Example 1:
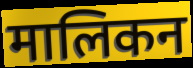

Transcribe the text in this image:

मालिकन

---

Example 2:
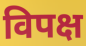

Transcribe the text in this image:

विपक्ष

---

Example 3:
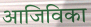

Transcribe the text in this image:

आजिविका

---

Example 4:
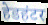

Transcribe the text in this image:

हेडहंटर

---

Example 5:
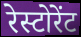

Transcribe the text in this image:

रेस्टोरेंट